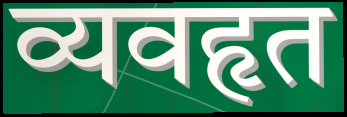
व्यवहृत